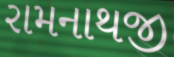
રામનાથજી